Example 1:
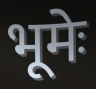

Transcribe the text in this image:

भूमेः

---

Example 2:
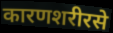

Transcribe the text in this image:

कारणशरीरसे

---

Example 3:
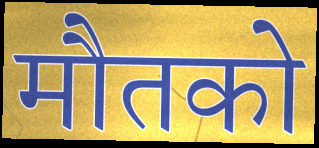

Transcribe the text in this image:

मौतको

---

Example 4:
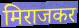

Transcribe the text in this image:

मिराजकर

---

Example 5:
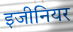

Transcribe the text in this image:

इजीनियर